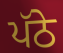
ਪੱਠੇ